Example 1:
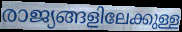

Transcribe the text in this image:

രാജ്യങ്ങളിലേക്കുള്ള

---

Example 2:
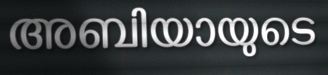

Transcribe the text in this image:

അബിയായുടെ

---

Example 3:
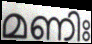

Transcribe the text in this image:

മണിഃ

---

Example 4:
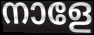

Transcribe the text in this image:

നാളേ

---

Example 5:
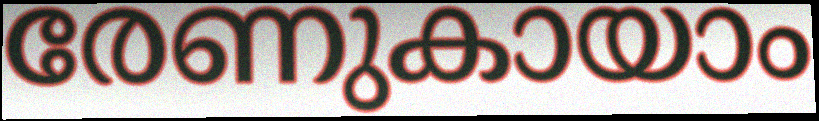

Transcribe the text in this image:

രേണുകായാം